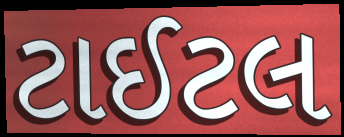
ટાઈટલ